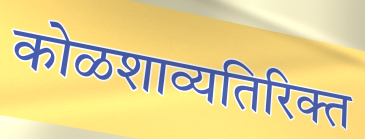
कोळशाव्यतिरिक्त